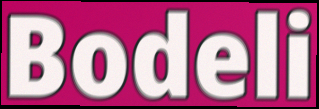
Bodeli